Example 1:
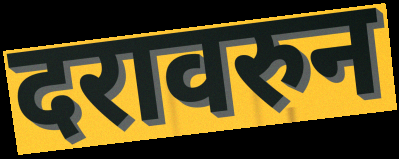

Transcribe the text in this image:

दरावरुन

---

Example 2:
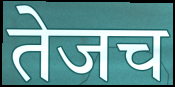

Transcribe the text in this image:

तेजच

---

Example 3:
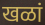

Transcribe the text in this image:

खळां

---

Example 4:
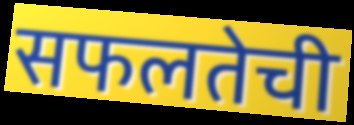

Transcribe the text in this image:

सफलतेची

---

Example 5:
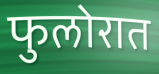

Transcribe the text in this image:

फुलोरात